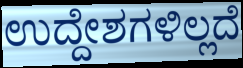
ಉದ್ದೇಶಗಳಿಲ್ಲದೆ